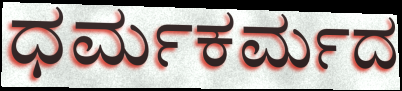
ಧರ್ಮಕರ್ಮದ